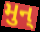
મુન્